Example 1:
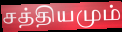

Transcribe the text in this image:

சத்தியமும்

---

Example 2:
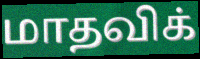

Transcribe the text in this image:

மாதவிக்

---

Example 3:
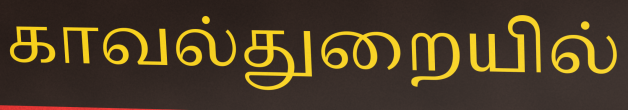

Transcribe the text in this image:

காவல்துறையில்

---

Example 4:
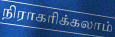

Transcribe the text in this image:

நிராகரிக்கலாம்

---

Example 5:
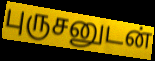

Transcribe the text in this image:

புருசனுடன்